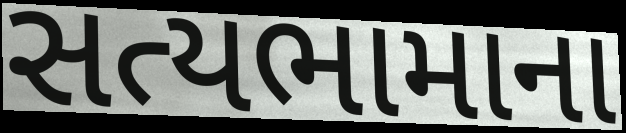
સત્યભામાના